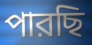
পারছি